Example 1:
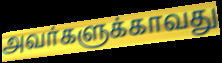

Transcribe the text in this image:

அவர்களுக்காவது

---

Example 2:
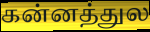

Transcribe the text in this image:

கன்னத்துல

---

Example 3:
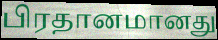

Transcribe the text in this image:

பிரதானமானது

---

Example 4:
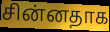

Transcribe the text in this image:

சின்னதாக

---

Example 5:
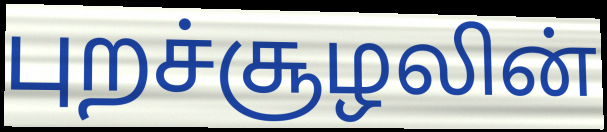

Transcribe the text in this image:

புறச்சூழலின்